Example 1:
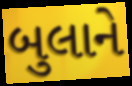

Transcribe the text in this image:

બુલાને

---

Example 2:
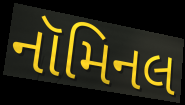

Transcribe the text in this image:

નૉમિનલ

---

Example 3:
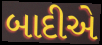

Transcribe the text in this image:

બાદીએ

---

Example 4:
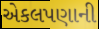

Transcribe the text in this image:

એકલપણાની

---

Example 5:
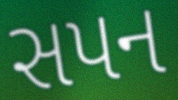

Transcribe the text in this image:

સપન